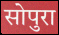
सोपुरा